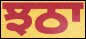
ਝਠਾ